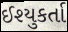
ઈશ્યુકર્તા